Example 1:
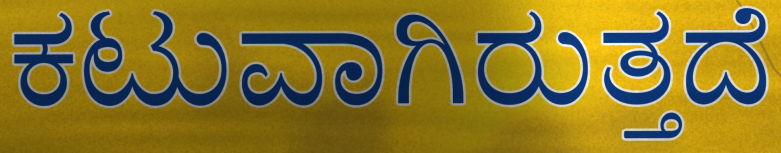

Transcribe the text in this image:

ಕಟುವಾಗಿರುತ್ತದೆ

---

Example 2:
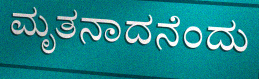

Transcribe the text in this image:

ಮೃತನಾದನೆಂದು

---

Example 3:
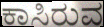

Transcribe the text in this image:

ಕಾಸಿರುವ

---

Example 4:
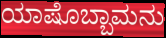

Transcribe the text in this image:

ಯಾಷೊಬ್ಬಾಮನು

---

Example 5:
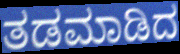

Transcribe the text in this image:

ತಡಮಾಡಿದ